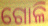
ଗୋଳି